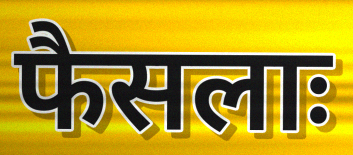
फैसलाः